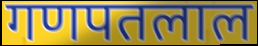
गणपतलाल